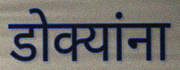
डोक्यांना